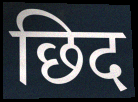
छिद